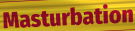
Masturbation